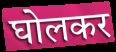
घोलकर